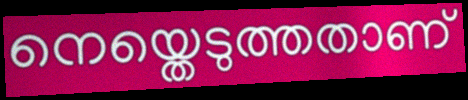
നെയ്തെടുത്തതാണ്